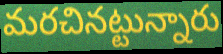
మరచినట్టున్నారు